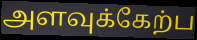
அளவுக்கேற்ப